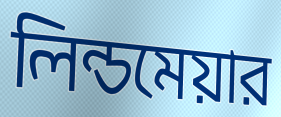
লিন্ডমেয়ার